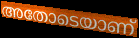
അതോടെയാണ്